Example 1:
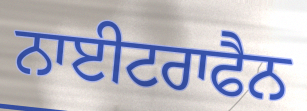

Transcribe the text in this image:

ਨਾਈਟਰਾਫੈਨ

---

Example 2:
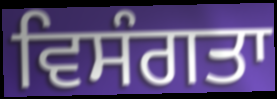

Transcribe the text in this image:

ਵਿਸੰਗਤਾ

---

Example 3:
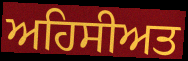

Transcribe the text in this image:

ਅਹਿਸੀਅਤ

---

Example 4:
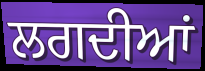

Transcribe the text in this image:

ਲਗਦੀਆਂ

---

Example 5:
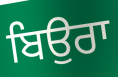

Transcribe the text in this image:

ਬਿਉਰਾ